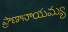
ప్రాణానాయమ్య